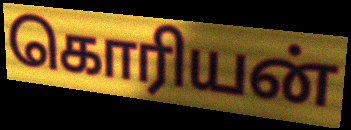
கொரியன்